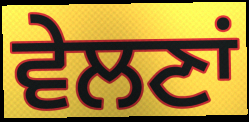
ਵੇਲਣਾਂ